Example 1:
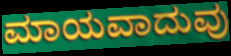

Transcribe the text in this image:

ಮಾಯವಾದುವು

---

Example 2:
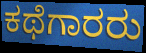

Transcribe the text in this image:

ಕಥೆಗಾರರು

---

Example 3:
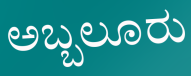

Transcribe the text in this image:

ಅಬ್ಬಲೂರು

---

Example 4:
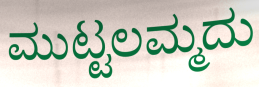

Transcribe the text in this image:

ಮುಟ್ಟಲಮ್ಮದು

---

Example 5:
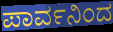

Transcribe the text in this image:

ಪಾರ್ವನಿಂದ